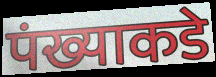
पंख्याकडे